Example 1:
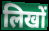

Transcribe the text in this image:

लिखों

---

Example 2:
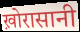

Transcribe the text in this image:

ख़ोरासानी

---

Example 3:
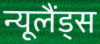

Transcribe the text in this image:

न्यूलैंड्स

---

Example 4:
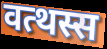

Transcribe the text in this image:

वत्थस्स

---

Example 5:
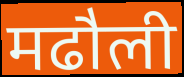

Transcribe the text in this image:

मढौली